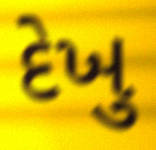
દેખુ